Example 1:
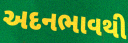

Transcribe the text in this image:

અદનભાવથી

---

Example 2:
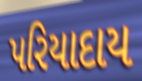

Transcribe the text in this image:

પરિયાદાય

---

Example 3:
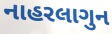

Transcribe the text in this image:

નાહરલાગુન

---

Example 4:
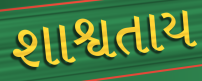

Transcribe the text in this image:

શાશ્વતાય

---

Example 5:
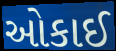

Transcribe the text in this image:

ઓકાઈ